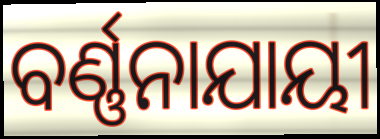
ବର୍ଣ୍ଣନାଯାୟୀ